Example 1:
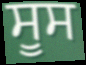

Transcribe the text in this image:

ਸੂਸ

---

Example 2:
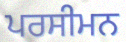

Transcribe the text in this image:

ਪਰਸੀਮਨ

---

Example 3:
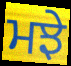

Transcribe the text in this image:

ਮਝੇ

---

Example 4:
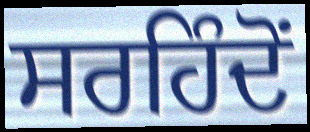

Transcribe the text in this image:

ਸਰਹਿੰਦੋਂ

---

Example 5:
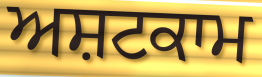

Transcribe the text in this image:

ਅਸ਼ਟਕਾਮ